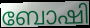
ബോഷി